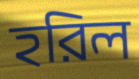
হরিল